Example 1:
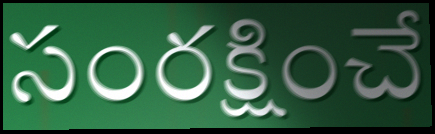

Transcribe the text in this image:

సంరక్షించే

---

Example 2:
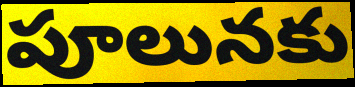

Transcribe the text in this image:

పూలునకు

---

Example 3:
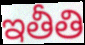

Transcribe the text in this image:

ఇతీతి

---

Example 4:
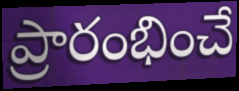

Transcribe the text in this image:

ప్రారంభించే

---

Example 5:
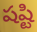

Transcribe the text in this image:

షష్టి